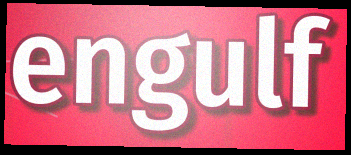
engulf